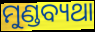
ମୁଣ୍ଡବ୍ୟଥା